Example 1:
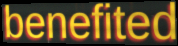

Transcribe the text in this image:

benefited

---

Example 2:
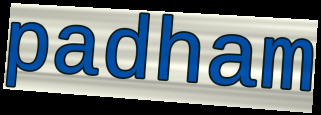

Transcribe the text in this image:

padham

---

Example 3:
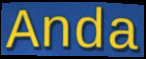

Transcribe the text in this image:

Anda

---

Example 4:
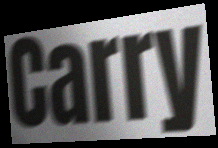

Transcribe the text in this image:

Carry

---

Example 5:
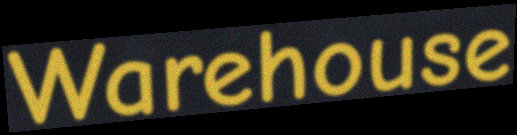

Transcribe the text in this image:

Warehouse